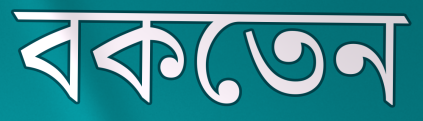
বকতেন